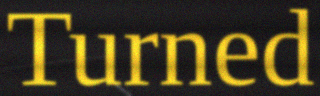
Turned